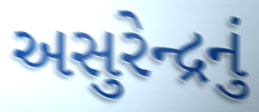
અસુરેન્દ્રનું